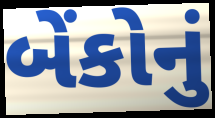
બેંકોનું